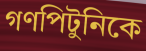
গণপিটুনিকে